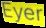
Eyer